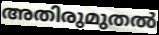
അതിരുമുതൽ